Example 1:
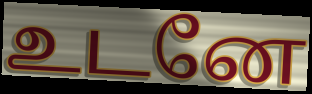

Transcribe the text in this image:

உடனே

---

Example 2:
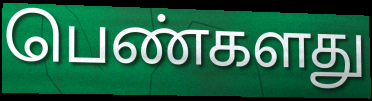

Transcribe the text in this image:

பெண்களது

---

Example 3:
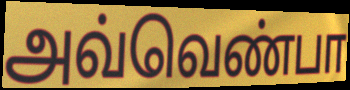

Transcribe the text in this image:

அவ்வெண்பா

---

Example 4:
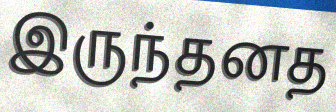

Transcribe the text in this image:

இருந்தனத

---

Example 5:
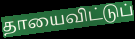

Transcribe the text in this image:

தாயைவிட்டுப்